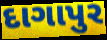
દાગાપુર